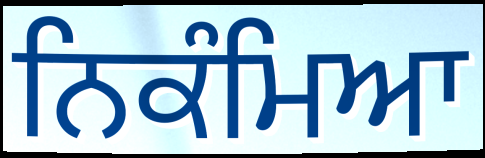
ਨਿਕੰਮਿਆ